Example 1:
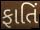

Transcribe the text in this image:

ફાતિં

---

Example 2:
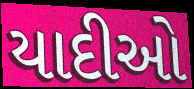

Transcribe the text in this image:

યાદીઓ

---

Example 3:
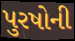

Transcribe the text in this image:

પુરષોની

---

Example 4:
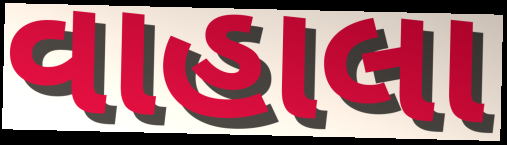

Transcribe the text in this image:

વાહાલા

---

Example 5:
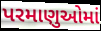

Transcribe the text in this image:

પરમાણુઓમાં